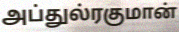
அப்துல்ரகுமான்